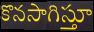
కొనసాగిస్తూ